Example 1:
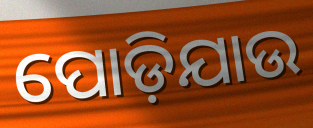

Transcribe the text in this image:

ପୋଡ଼ିଯାଉ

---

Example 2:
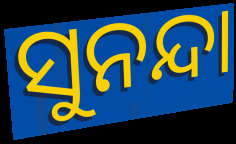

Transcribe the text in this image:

ସୁନନ୍ଦା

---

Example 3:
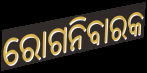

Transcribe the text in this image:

ରୋଗନିବାରକ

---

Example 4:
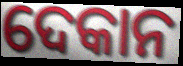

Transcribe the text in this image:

ଦେକାନ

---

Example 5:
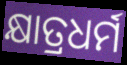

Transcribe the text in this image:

କ୍ଷାତ୍ରଧର୍ମ